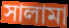
সালামা